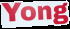
Yong